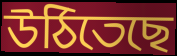
উঠিতেছে